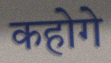
कहोगे